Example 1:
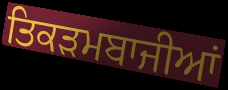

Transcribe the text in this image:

ਤਿਕੜਮਬਾਜੀਆਂ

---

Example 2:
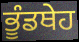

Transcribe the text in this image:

ਭੂੰਡਥੇਹ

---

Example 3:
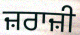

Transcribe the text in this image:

ਜ਼ਰਾਜ਼ੀ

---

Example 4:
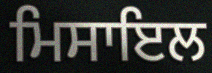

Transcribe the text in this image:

ਮਿਸਾਇਲ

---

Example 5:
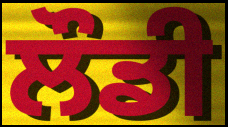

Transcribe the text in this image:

ਲੌਡੀ